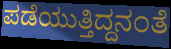
ಪಡೆಯುತ್ತಿದ್ದನಂತೆ